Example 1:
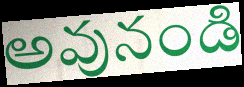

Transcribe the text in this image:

అవునండి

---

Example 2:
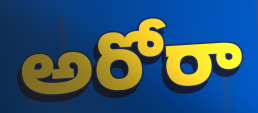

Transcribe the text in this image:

అరోరా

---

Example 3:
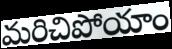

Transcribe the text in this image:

మరిచిపోయాం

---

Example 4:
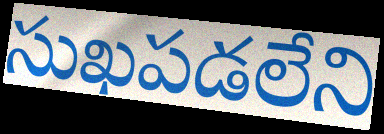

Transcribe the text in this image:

సుఖపడలేని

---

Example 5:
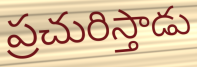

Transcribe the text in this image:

ప్రచురిస్తాడు